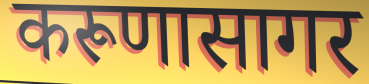
करूणासागर